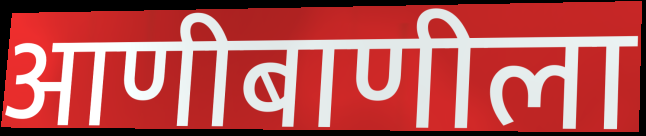
आणीबाणीला